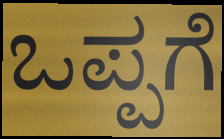
ಒಪ್ಪಗೆ